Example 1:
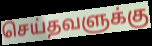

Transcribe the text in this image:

செய்தவளுக்கு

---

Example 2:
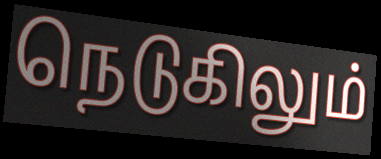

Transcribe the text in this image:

நெடுகிலும்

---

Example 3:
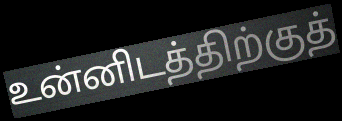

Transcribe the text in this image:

உன்னிடத்திற்குத்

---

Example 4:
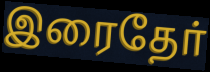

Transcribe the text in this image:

இரைதேர்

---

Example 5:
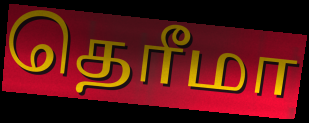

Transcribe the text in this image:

தெரீமா